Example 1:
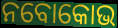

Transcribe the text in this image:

ନବୋକୋଭ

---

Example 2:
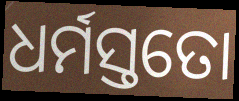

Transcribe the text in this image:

ଧର୍ମସ୍ତତୋ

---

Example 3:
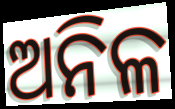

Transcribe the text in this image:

ଅନିଳ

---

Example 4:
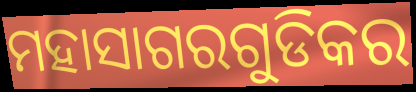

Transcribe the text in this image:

ମହାସାଗରଗୁଡିକର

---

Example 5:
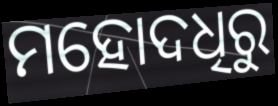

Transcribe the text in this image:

ମହୋଦଧିରୁ